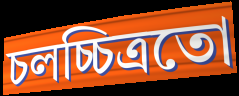
চলচ্চিত্ৰতো